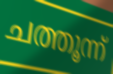
ചത്തൂന്ന്